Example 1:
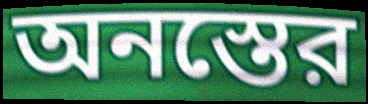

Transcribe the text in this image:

অনস্তের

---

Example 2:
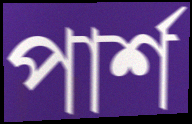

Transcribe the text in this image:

পার্শ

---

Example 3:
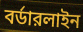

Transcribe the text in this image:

বর্ডারলাইন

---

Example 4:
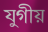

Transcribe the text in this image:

যুগীয়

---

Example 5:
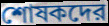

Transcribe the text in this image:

শোষকদের